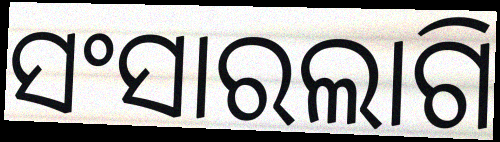
ସଂସାରଲାଗି